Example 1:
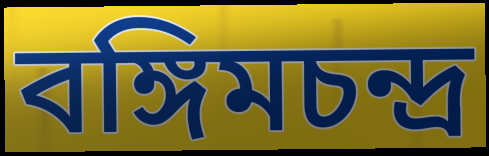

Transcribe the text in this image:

বঙ্গিমচন্দ্র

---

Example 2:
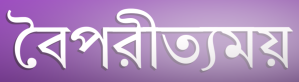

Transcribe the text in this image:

বৈপরীত্যময়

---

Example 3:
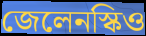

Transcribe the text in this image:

জেলেনস্কিও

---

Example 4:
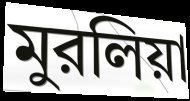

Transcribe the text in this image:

মুরলিয়া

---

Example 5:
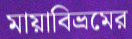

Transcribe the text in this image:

মায়াবিভ্রমের